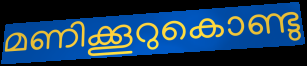
മണിക്കൂറുകൊണ്ടു